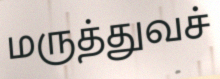
மருத்துவச்